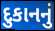
દુકાનનું